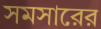
সমসারের